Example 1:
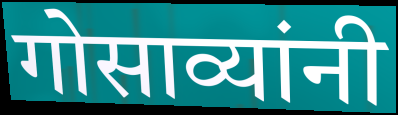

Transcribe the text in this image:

गोसाव्यांनी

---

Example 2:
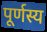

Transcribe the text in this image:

पूर्णस्य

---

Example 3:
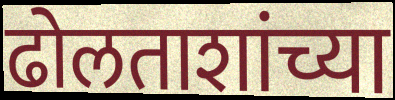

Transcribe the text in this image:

ढोलताशांच्या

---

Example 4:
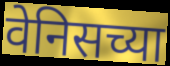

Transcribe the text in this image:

वेनिसच्या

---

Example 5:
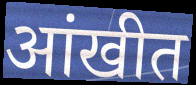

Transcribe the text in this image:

आंखीत